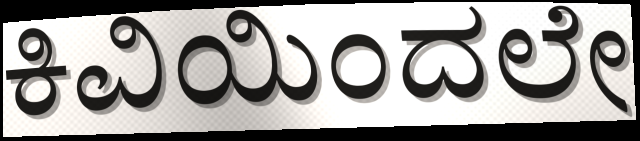
ಕಿವಿಯಿಂದಲೇ